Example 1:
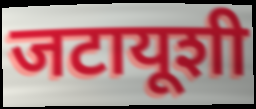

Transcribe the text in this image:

जटायूशी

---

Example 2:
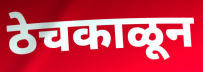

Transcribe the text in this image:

ठेचकाळून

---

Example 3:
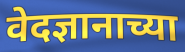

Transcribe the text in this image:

वेदज्ञानाच्या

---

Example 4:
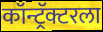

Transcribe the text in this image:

कॉन्ट्रॅक्टरला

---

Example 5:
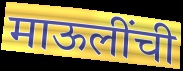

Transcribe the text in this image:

माऊलींची